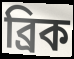
ব্রিক